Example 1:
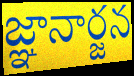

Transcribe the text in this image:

జ్ఞానార్జన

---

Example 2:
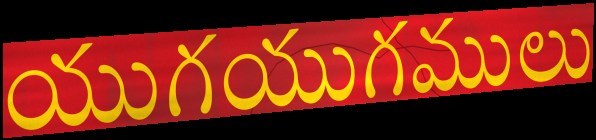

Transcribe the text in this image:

యుగయుగములు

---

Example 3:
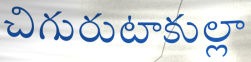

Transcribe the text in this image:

చిగురుటాకుల్లా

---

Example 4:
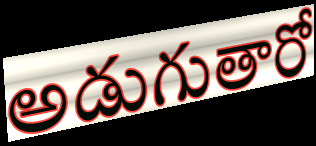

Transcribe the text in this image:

అడుగుతారో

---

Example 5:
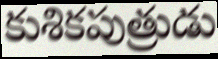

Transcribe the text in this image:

కుశికపుత్రుడు